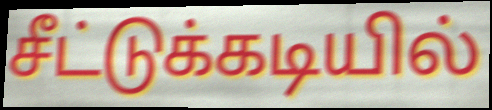
சீட்டுக்கடியில்